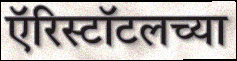
ऍरिस्टॉटलच्या